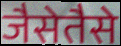
जैसेतैसे